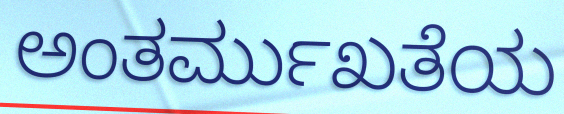
ಅಂತರ್ಮುಖತೆಯ